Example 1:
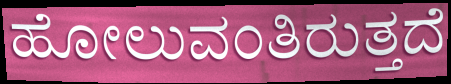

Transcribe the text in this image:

ಹೋಲುವಂತಿರುತ್ತದೆ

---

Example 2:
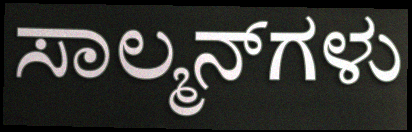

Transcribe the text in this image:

ಸಾಲ್ಮನ್‌ಗಳು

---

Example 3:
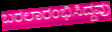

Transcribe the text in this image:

ಬರಲಾರಂಭಿಸಿದ್ದವು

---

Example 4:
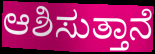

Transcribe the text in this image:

ಆಶಿಸುತ್ತಾನೆ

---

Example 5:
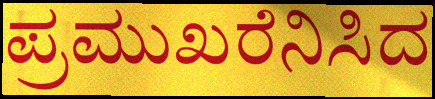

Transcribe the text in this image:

ಪ್ರಮುಖರೆನಿಸಿದ